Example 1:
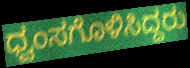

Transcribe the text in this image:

ಧ್ವಂಸಗೊಳಿಸಿದ್ದರು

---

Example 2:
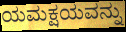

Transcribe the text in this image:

ಯಮಕ್ಷಯವನ್ನು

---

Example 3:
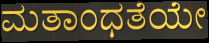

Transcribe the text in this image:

ಮತಾಂಧತೆಯೇ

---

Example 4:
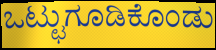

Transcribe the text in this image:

ಒಟ್ಟುಗೂಡಿಕೊಂಡು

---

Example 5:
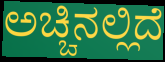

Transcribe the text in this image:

ಅಚ್ಚಿನಲ್ಲಿದೆ